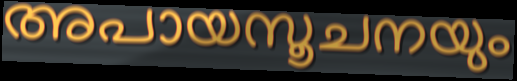
അപായസൂചനയും